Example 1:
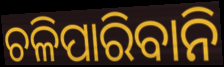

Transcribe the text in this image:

ଚଳିପାରିବାନି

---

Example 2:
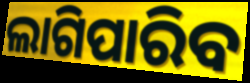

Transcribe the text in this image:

ଲାଗିପାରିବ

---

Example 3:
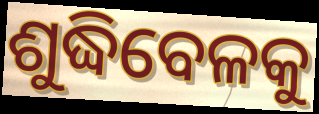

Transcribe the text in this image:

ଶୁଦ୍ଧିବେଳକୁ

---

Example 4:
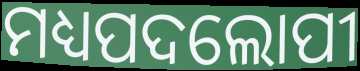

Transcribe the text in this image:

ମଧ୍ଯପଦଲୋପୀ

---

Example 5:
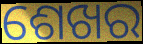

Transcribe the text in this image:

ଶେଖର